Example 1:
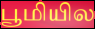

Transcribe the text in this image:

பூமியில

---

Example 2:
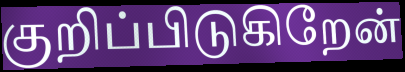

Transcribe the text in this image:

குறிப்பிடுகிறேன்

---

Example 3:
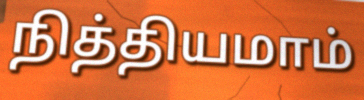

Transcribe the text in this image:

நித்தியமாம்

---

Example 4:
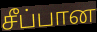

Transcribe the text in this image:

சீப்பான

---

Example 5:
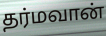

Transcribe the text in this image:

தர்மவான்